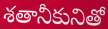
శతానీకునితో